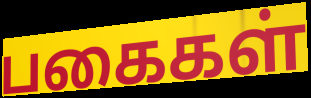
பகைகள்